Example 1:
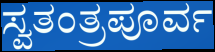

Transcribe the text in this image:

ಸ್ವತಂತ್ರಪೂರ್ವ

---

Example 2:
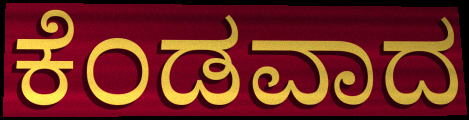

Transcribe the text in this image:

ಕೆಂಡವಾದ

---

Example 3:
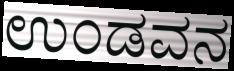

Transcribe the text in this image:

ಉಂಡವನ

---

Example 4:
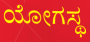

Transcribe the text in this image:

ಯೋಗಸ್ಥ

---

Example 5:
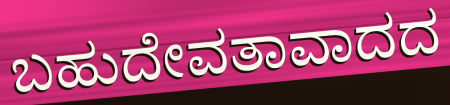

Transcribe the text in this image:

ಬಹುದೇವತಾವಾದದ